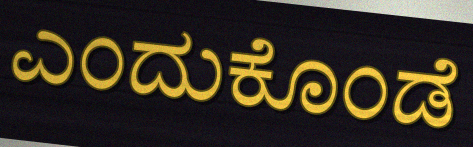
ಎಂದುಕೊಂಡೆ